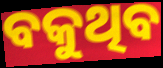
ବକୁଥିବ